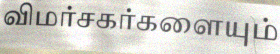
விமர்சகர்களையும்